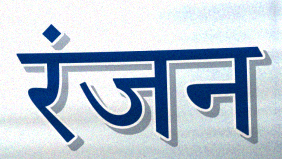
रंजन